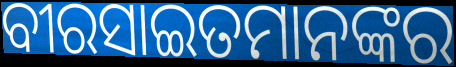
ବୀରସାଇତମାନଙ୍କର